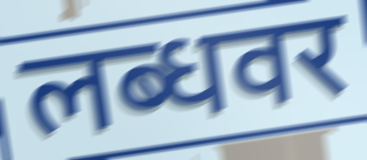
लब्धवर